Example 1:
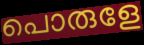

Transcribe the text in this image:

പൊരുളേ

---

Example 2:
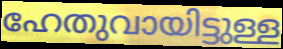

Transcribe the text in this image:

ഹേതുവായിട്ടുള്ള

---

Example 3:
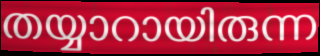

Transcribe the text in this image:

തയ്യാറായിരുന്ന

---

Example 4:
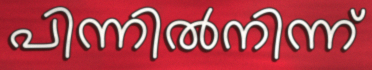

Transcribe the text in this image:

പിന്നിൽനിന്ന്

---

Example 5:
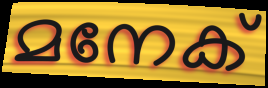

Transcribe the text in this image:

മനേക്